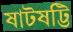
ষাটষট্টি